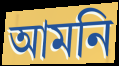
আমনি